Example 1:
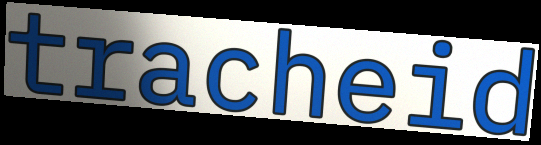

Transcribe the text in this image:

tracheid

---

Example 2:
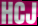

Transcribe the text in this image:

HCJ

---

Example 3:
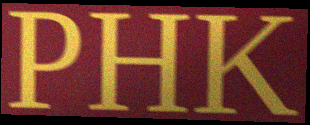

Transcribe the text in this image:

PHK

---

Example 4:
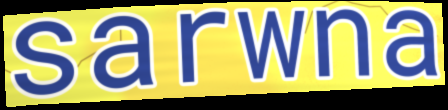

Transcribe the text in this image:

sarwna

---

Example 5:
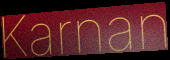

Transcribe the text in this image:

Karnan